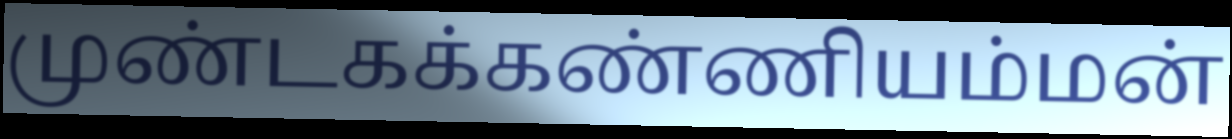
முண்டகக்கண்ணியம்மன்